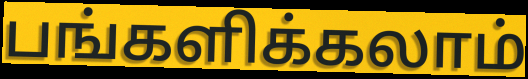
பங்களிக்கலாம்